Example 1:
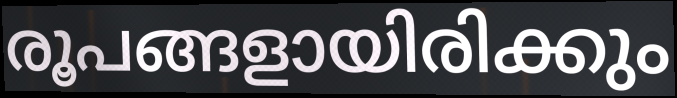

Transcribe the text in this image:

രൂപങ്ങളായിരിക്കും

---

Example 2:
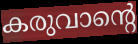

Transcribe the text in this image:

കരുവാന്റെ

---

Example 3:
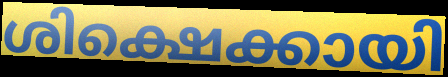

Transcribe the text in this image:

ശിക്ഷെക്കായി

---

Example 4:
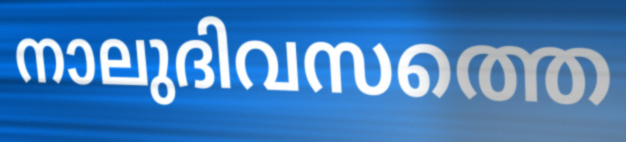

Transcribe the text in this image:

നാലുദിവസത്തെ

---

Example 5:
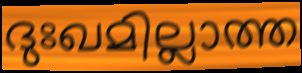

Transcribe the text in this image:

ദുഃഖമില്ലാത്ത